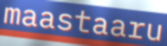
maastaaru